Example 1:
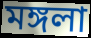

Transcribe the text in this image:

মঙ্গলা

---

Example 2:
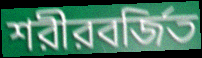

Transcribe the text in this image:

শরীরবর্জিত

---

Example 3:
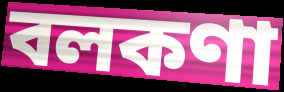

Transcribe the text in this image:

বলকণা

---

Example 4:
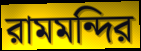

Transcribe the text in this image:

রামমন্দির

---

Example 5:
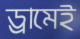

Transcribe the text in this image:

ড্রামেই